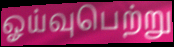
ஓய்வுபெற்று